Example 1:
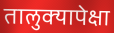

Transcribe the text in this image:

तालुक्यापेक्षा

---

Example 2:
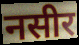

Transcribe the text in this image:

नसीर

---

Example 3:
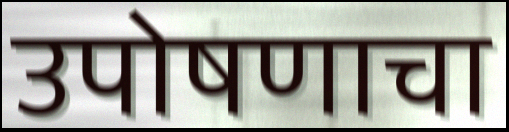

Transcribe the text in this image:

उपोषणाचा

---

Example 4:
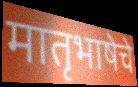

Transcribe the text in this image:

मातृभाषेचे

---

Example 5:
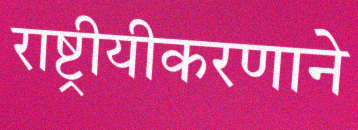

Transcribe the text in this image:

राष्ट्रीयीकरणाने